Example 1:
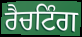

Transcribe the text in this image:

ਰੈਚਟਿੰਗ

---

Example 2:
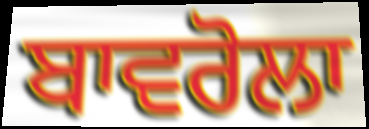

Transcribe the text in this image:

ਬਾਵਰੋਲਾ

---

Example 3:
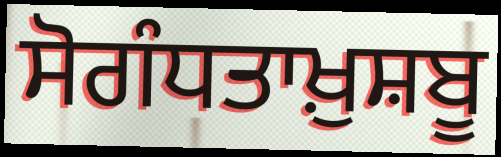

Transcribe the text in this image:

ਸੋਗੰਧਤਾਖ਼ੁਸ਼ਬੂ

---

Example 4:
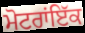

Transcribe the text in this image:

ਮੋਟਰਾਂਇੱਕ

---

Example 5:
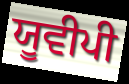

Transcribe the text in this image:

ਯੂਵੀਪੀ